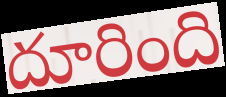
దూరింది